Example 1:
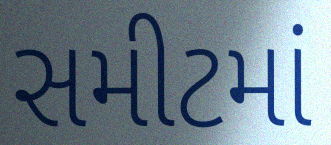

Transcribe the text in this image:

સમીટમાં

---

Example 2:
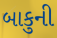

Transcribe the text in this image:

બાકુની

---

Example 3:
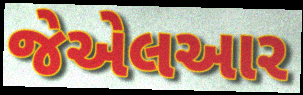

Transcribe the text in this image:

જેએલઆર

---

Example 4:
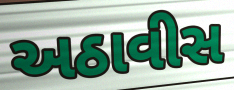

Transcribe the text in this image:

અઠાવીસ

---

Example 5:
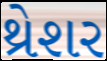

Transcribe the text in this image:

થ્રેશર